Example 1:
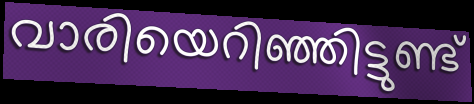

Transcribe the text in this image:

വാരിയെറിഞ്ഞിട്ടുണ്ട്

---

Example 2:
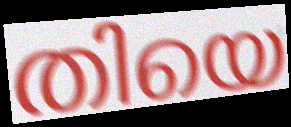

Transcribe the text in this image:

തിയെ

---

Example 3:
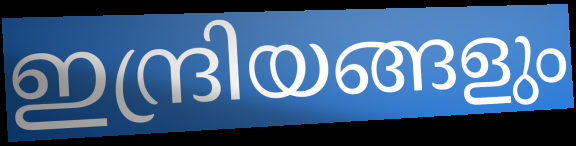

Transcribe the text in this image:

ഇന്ദ്രിയങ്ങളും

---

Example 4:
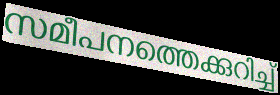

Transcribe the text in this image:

സമീപനത്തെക്കുറിച്ച്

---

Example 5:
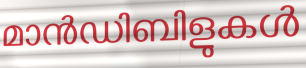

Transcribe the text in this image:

മാൻഡിബിളുകൾ